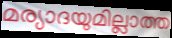
മര്യാദയുമില്ലാത്ത